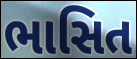
ભાસિત